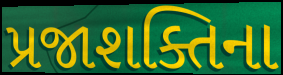
પ્રજાશક્તિના